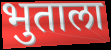
भुताला